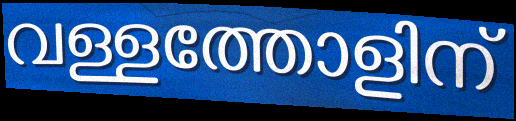
വള്ളത്തോളിന്